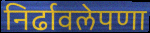
निर्ढावलेपणा